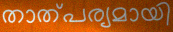
താത്പര്യമായി